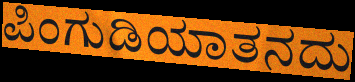
ಪಿಂಗುಡಿಯಾತನದು